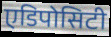
एडिपोसिटी